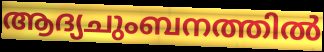
ആദ്യചുംബനത്തിൽ